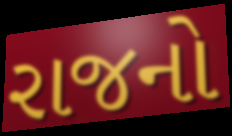
રાજનો